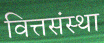
वित्तसंस्था